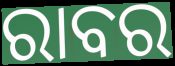
ରାବର